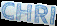
CHRI